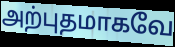
அற்புதமாகவே